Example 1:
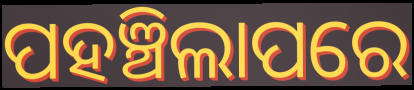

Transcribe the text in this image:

ପହଞ୍ଚିଲାପରେ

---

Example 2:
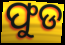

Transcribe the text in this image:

ଫୁଡ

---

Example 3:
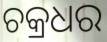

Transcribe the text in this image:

ଚକ୍ରଧର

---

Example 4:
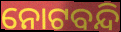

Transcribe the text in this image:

ନୋଟବନ୍ଦି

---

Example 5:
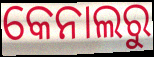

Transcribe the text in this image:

କେନାଲରୁ